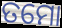
ତମୋ